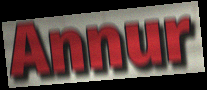
Annur